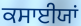
ਕਸਾਈਯਾਂ